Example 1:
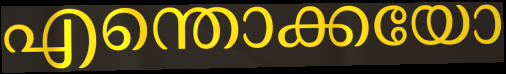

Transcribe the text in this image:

എന്തൊക്കയോ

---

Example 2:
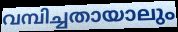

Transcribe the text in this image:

വമ്പിച്ചതായാലും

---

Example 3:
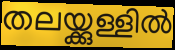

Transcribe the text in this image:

തലയ്ക്കുള്ളിൽ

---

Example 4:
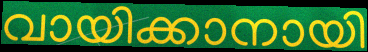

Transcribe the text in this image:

വായിക്കാനായി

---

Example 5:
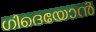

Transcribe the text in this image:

ഗിദെയോൻ